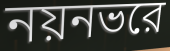
নয়নভরে